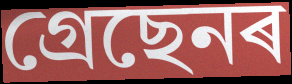
গ্ৰেছেনৰ